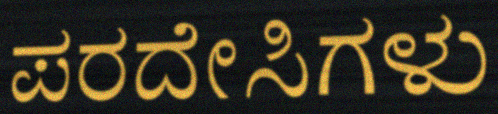
ಪರದೇಸಿಗಳು